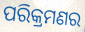
ପରିକ୍ରମଣର